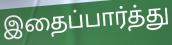
இதைப்பார்த்து